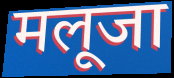
मलूजा